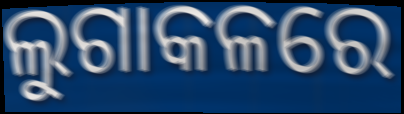
ଲୁଗାକଳରେ